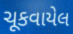
ચૂકવાયેલ